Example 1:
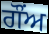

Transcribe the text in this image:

ਗੌਂਅ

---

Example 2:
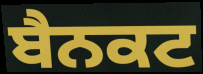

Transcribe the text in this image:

ਬੈਨਕਟ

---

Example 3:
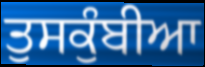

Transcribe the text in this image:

ਤੁਸਕੁੰਬੀਆ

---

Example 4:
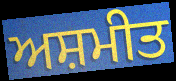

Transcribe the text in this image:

ਅਸ਼ਮੀਤ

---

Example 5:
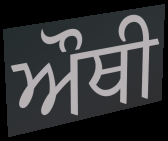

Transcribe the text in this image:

ਔਥੀ